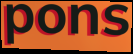
pons